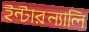
ইন্টারন্যালি